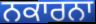
ਨਕਾਰਨਾ